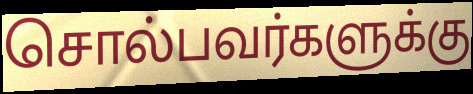
சொல்பவர்களுக்கு